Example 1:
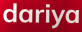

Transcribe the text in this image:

dariya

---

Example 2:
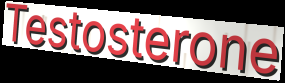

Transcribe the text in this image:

Testosterone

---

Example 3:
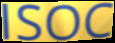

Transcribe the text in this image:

ISOC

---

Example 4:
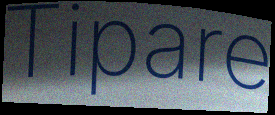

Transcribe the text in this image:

Tipare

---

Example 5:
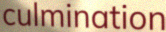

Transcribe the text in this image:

culmination